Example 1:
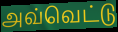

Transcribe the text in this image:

அவ்வெட்டு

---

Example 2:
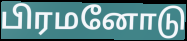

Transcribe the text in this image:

பிரமனோடு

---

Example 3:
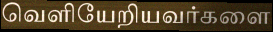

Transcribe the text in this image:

வெளியேறியவர்களை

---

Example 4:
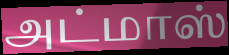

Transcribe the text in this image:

அட்மாஸ்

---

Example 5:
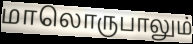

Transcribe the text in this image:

மாலொருபாலும்